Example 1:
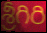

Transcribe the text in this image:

శ్రీగిరి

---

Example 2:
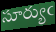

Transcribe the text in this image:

సూర్యుఁ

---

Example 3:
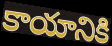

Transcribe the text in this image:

కాయానికి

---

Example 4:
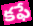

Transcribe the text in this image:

కఫే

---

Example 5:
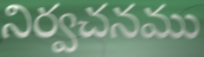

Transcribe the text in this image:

నిర్వచనము